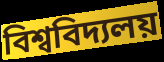
বিশ্ববিদ্যলয়